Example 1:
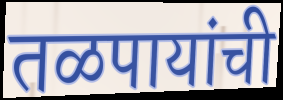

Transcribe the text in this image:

तळपायांची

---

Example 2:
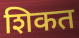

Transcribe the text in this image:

शिकत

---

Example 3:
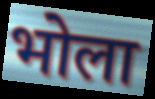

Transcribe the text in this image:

भोला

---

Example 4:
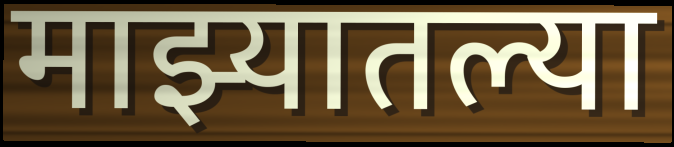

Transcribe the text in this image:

माझ्यातल्या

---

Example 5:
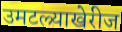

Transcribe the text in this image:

उमटल्याखेरीज